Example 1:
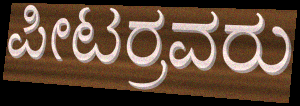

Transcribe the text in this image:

ಪೀಟರ್‍ರವರು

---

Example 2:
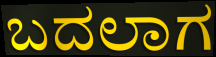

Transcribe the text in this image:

ಬದಲಾಗ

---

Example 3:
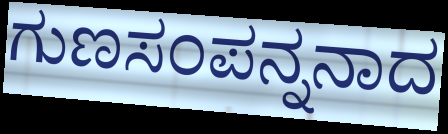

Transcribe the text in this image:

ಗುಣಸಂಪನ್ನನಾದ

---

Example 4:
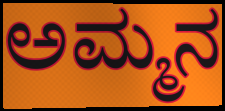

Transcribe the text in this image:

ಅಮ್ಮನ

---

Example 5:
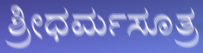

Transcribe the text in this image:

ಶ್ರೀಧರ್ಮಸೂತ್ರ